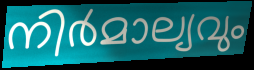
നിർമാല്യവും